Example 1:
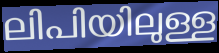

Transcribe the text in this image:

ലിപിയിലുള്ള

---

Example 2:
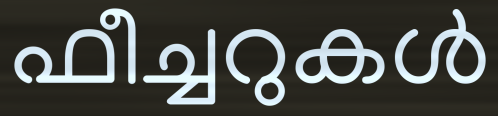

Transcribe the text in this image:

ഫീച്ചറുകൾ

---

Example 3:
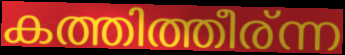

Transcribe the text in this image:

കത്തിത്തീര്ന്ന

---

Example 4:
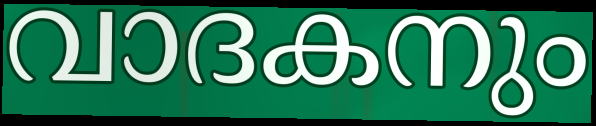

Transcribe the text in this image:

വാദകനും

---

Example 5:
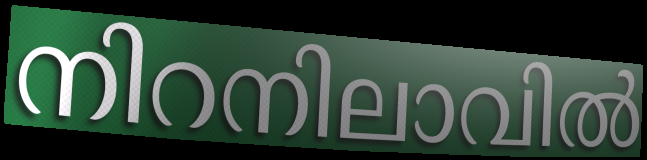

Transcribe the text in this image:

നിറനിലാവിൽ